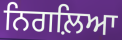
ਨਿਗਲ਼ਿਆ